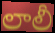
లాలీ